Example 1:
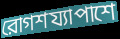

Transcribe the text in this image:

রোগশয্যাপাশে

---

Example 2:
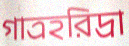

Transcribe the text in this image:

গাত্রহরিদ্রা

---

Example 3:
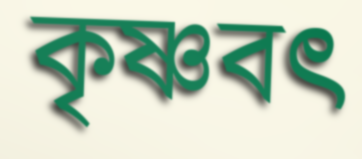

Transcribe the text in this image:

কৃষ্ণবৎ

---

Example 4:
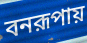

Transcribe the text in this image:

বনরূপায়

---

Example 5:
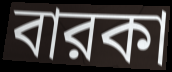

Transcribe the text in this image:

বারকা